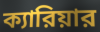
ক্যারিয়ার